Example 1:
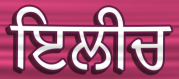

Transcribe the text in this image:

ਇਲੀਚ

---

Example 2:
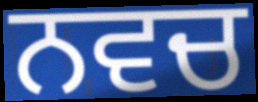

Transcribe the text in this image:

ਨਵਚ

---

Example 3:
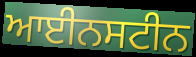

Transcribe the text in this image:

ਆਈਨਸਟੀਨ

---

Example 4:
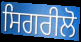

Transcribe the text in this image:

ਸਿਗਰੀਲੋ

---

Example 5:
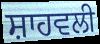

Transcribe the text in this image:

ਸ਼ਾਹਵਲੀ